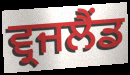
ਵ੍ਰਜਲੈਂਡ